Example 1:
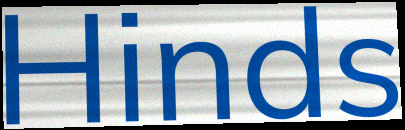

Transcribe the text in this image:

Hinds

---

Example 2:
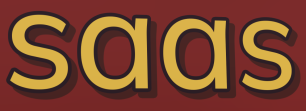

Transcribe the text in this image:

saas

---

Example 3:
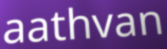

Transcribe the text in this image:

aathvan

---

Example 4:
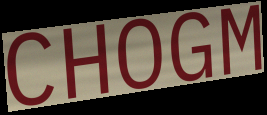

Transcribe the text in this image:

CHOGM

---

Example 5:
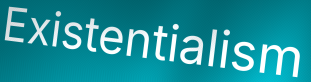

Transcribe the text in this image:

Existentialism